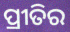
ପ୍ରୀତିର